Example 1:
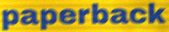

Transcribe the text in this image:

paperback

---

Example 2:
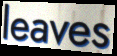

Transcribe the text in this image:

leaves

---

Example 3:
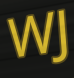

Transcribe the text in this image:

WJ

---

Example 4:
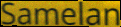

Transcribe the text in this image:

Samelan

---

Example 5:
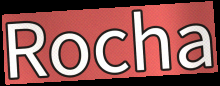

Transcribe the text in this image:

Rocha